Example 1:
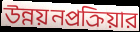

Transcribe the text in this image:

উন্নয়নপ্রক্রিয়ার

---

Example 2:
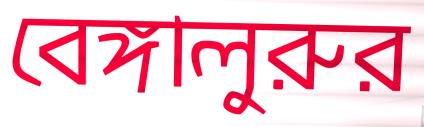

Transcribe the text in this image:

বেঙ্গালুরুর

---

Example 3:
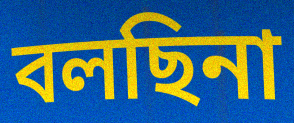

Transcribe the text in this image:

বলছিনা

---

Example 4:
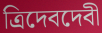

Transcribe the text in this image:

ত্রিদেবদেবী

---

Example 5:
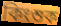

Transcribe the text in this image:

কিংশুক